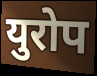
युरोप